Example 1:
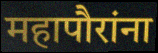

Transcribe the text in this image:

महापौरांना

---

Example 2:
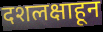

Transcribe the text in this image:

दशलक्षाहून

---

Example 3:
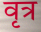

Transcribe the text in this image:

वृत्र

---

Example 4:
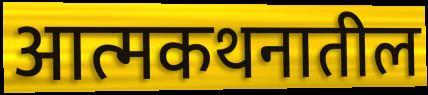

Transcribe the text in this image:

आत्मकथनातील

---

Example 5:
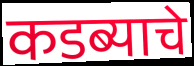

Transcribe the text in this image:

कडब्याचे